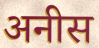
अनीस